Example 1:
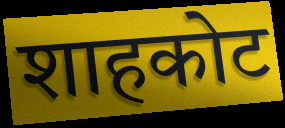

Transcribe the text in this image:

शाहकोट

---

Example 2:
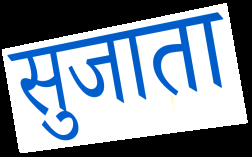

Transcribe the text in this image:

सुजाता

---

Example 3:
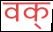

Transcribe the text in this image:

वक्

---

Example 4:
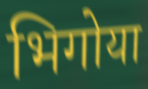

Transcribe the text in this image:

भिगोया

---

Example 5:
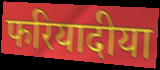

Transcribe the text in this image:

फरियादीया